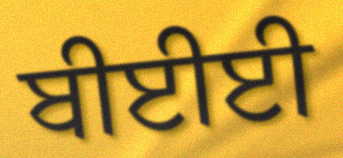
ਬੀਈਈ